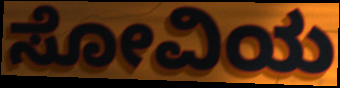
ಸೋವಿಯ